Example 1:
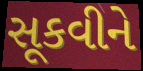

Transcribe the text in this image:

સૂકવીને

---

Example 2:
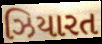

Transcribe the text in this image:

ઝિયારત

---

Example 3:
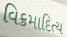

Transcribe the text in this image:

વિક્રમાદિત્‍ય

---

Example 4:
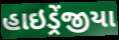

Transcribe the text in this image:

હાઇડ્રેંજીયા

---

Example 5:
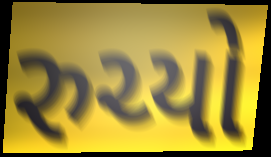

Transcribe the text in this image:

રુચ્યો